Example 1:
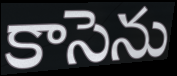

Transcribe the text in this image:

కాసెను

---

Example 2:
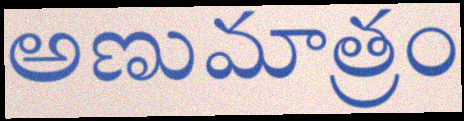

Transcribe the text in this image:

అణుమాత్రం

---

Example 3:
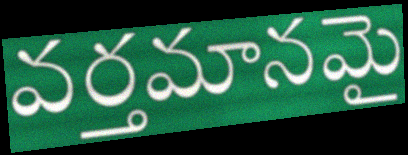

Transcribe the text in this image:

వర్తమానమై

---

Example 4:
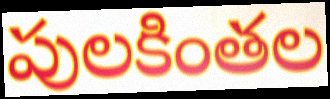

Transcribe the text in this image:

పులకింతల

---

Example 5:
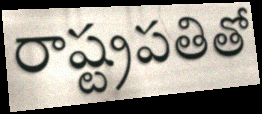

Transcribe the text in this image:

రాష్ట్రపతితో